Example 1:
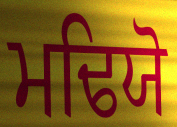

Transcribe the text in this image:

ਮਢਿਯੋ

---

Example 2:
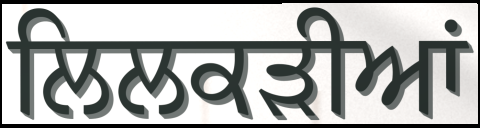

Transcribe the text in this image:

ਲਿਲਕੜੀਆਂ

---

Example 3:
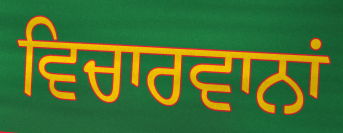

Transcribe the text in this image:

ਵਿਚਾਰਵਾਨਾਂ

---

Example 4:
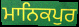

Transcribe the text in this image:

ਮਾਨਿਕਪੁਰ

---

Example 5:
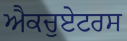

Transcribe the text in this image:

ਐਕਚੁਏਟਰਸ